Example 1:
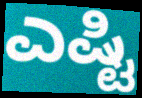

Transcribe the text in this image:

ಎಷ್ಟಿ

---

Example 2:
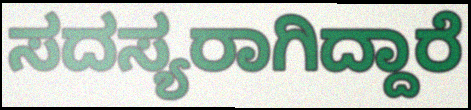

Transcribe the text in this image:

ಸದಸ್ಯರಾಗಿದ್ದಾರೆ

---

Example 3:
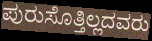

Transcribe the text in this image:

ಪುರುಸೊತ್ತಿಲ್ಲದವರು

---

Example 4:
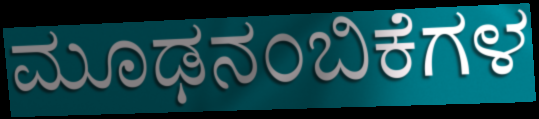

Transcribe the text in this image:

ಮೂಢನಂಬಿಕೆಗಳ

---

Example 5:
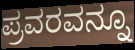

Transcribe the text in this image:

ಪ್ರವರವನ್ನೂ